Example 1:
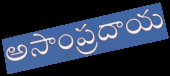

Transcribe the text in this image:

అసాంప్రదాయ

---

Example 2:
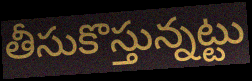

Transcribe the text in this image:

తీసుకొస్తున్నట్టు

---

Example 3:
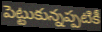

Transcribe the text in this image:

పెట్టుకున్నప్పటికీ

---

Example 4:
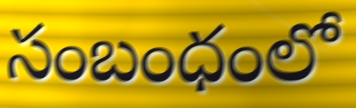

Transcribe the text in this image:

సంబంధంలో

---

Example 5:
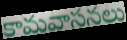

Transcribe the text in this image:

కామవాసనలు